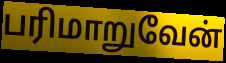
பரிமாறுவேன்